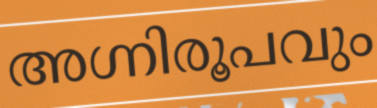
അഗ്നിരൂപവും